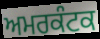
ਅਮਰਕੰਟਕ